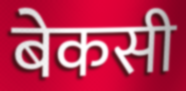
बेकसी